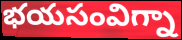
భయసంవిగ్నా